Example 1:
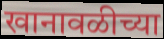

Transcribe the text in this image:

खानावळीच्या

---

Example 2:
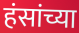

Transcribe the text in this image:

हंसांच्या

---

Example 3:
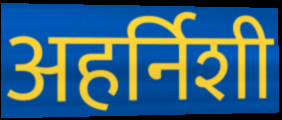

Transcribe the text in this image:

अहर्निशी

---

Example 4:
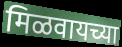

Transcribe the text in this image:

मिळवायच्या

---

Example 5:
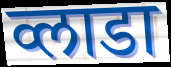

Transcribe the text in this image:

व्लाडा